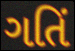
ગતિં